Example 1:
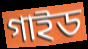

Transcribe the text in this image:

গাইড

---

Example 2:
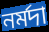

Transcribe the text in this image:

নৰ্মদা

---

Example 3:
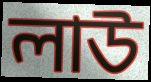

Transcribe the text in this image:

লাউ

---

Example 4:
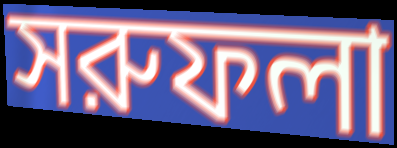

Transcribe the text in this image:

সৰুফলা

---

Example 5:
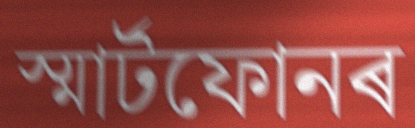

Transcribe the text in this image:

স্মাৰ্টফোনৰ